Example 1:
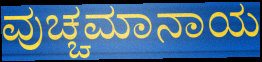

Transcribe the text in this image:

ವುಚ್ಚಮಾನಾಯ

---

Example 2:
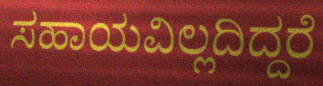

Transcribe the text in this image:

ಸಹಾಯವಿಲ್ಲದಿದ್ದರೆ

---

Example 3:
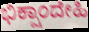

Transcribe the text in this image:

ಭಿಕ್ಷಾಂದೇಹಿ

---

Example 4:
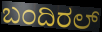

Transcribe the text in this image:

ಬಂದಿರಲ್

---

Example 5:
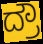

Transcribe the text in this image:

ದ್ರೌ